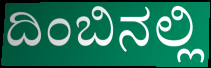
ದಿಂಬಿನಲ್ಲಿ